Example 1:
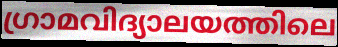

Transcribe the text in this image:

ഗ്രാമവിദ്യാലയത്തിലെ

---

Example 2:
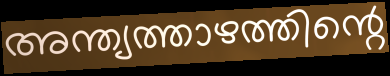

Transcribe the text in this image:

അന്ത്യത്താഴത്തിന്റെ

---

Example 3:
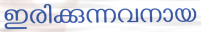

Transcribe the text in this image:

ഇരിക്കുന്നവനായ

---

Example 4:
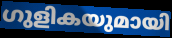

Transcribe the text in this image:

ഗുളികയുമായി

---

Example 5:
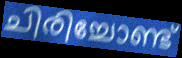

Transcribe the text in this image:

ചിരിച്ചോണ്ട്